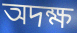
অদক্ষ